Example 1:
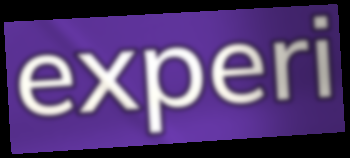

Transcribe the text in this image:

experi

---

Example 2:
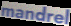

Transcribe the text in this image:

mandrel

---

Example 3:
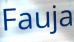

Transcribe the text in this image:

Fauja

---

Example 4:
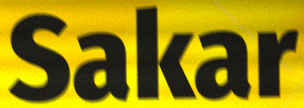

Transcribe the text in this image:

Sakar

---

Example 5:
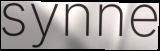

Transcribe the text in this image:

synne